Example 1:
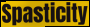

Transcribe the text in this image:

Spasticity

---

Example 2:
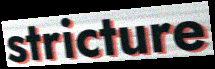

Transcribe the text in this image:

stricture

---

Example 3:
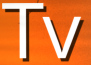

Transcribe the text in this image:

Tv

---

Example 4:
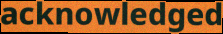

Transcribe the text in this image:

acknowledged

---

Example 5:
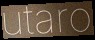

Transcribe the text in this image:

utaro